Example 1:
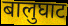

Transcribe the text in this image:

बालुघाट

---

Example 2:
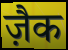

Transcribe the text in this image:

ज़ैक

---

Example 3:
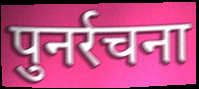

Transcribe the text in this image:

पुनर्रचना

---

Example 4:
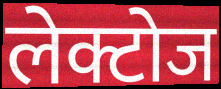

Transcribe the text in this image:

लेक्टोज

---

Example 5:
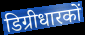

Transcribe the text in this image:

डिग्रीधारकों